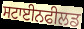
ਸਟਾਈਨਫੀਲਡ